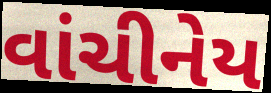
વાંચીનેય